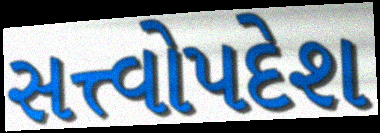
સત્ત્વોપદેશ